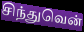
சிந்துவென்